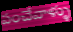
పంచేవాళ్ళు